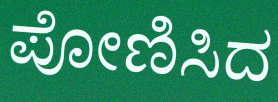
ಪೋಣಿಸಿದ